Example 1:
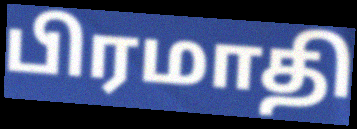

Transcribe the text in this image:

பிரமாதி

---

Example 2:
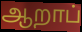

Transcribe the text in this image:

ஆறாப்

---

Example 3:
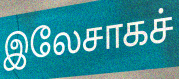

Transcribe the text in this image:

இலேசாகச்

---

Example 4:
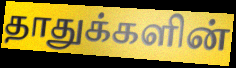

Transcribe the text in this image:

தாதுக்களின்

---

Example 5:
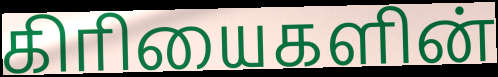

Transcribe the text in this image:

கிரியைகளின்